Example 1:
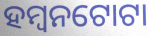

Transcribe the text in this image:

ହମ୍ବନଟୋଟା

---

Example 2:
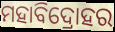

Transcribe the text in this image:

ମହାବିଦ୍ରୋହର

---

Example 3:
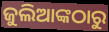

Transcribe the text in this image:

ଜୁଲିଆଙ୍କଠାରୁ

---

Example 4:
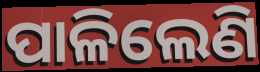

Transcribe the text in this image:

ପାଳିଲେଣି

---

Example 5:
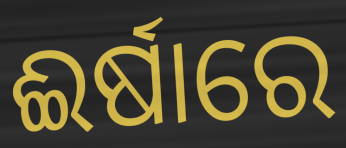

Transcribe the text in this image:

ଈର୍ଷାରେ